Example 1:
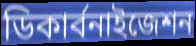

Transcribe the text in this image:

ডিকার্বনাইজেশন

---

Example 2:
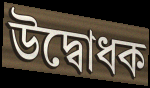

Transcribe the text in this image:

উদ্বোধক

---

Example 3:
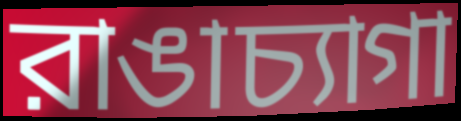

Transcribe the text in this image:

রাঙাচ্যাগা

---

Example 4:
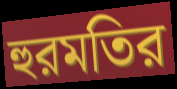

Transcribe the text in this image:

হুরমতির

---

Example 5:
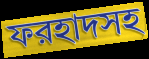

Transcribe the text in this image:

ফরহাদসহ